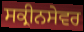
ਸਕ੍ਰੀਨਸੇਵਰ